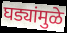
घड्यांमुळे